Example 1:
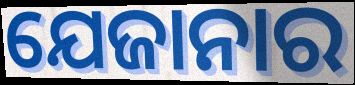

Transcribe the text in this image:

ଯେଜାନାର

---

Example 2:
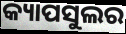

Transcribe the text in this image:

କ୍ୟାପସୁଲର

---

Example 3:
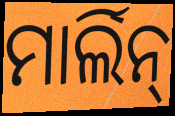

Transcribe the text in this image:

ମାର୍ଲିନ୍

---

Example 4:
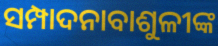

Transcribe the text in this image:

ସମ୍ପାଦନାବାଶୁଳୀଙ୍କ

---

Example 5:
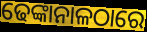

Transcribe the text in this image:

ଢେଙ୍କାନାଳଠାରେ